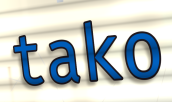
tako